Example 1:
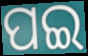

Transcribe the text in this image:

ପଇ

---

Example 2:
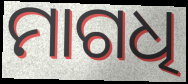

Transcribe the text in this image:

ମାଗଧି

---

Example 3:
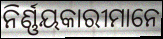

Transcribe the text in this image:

ନିର୍ଣ୍ଣୟକାରୀମାନେ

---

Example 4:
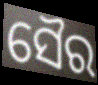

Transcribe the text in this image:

ସୈର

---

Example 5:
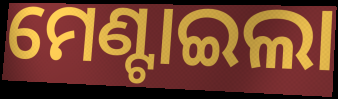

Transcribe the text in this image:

ମେଣ୍ଟାଇଲା